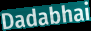
Dadabhai